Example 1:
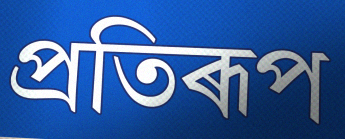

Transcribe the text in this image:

প্ৰতিৰূপ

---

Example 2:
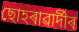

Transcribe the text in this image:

ছোহৰাৱাৰ্দীৰ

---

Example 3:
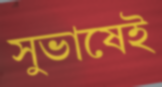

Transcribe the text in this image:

সুভাষেই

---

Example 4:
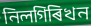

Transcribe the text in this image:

নিলগিৰিখন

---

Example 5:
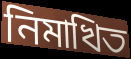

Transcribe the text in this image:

নিমাখিত